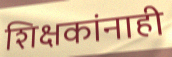
शिक्षकांनाही